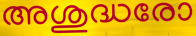
അശുദ്ധരോ